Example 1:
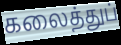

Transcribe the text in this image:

கலைத்துப்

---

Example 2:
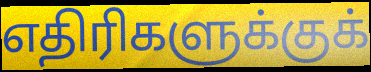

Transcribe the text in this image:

எதிரிகளுக்குக்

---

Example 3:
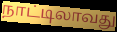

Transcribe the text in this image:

நாட்டிலாவது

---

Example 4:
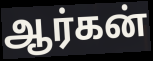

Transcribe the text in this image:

ஆர்கன்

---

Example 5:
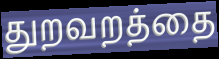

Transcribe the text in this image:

துறவறத்தை